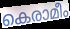
കെരാമീം